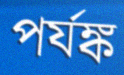
পর্যঙ্ক